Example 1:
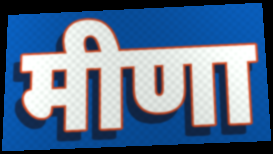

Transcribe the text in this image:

मीणा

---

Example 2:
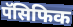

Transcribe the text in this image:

पॅसिफिक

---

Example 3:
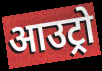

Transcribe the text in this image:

आउट्रो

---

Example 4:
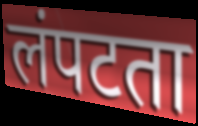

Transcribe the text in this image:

लंपटता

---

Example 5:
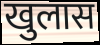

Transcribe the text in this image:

खुलास